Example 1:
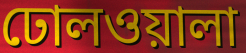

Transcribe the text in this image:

ঢোলওয়ালা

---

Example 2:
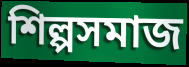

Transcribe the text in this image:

শিল্পসমাজ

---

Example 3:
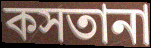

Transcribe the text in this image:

কসতানা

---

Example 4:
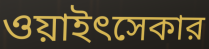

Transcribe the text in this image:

ওয়াইৎসেকার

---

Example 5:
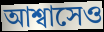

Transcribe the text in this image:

আশ্বাসেও